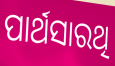
ପାର୍ଥସାରଥି